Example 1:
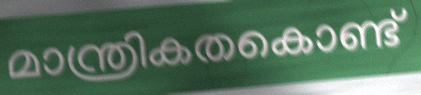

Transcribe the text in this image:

മാന്ത്രികതകൊണ്ട്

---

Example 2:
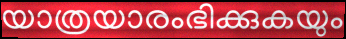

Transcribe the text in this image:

യാത്രയാരംഭിക്കുകയും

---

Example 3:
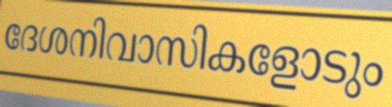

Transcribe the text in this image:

ദേശനിവാസികളോടും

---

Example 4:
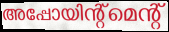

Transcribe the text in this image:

അപ്പോയിന്റ്മെന്റ്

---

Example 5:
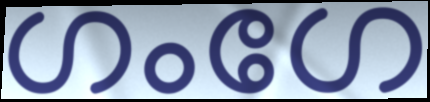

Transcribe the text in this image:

ഗംഗേ